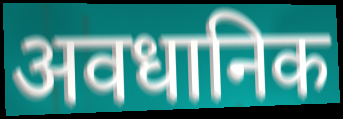
अवधानिक